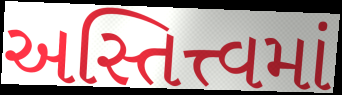
અસ્તિત્ત્વમાં